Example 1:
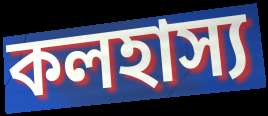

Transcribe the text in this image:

কলহাস্য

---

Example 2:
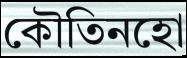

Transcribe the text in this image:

কৌতিনহো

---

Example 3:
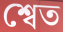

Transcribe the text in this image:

শ্বেত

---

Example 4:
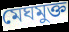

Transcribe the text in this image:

মেঘমুক্ত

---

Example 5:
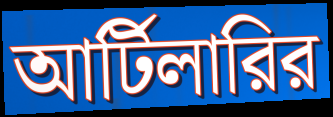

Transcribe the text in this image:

আর্টিলারির